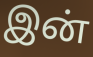
இன்